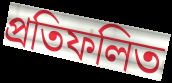
প্রতিফলিত